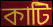
কাটি